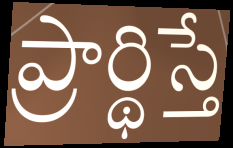
ప్రార్థిస్తే